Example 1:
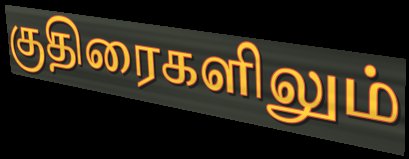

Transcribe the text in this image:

குதிரைகளிலும்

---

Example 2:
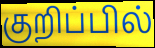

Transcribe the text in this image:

குறிப்பில்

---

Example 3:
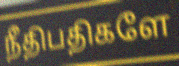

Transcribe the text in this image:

நீதிபதிகளே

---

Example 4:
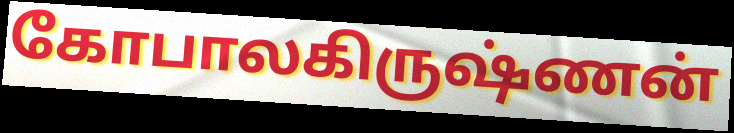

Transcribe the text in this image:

கோபாலகிருஷ்ணன்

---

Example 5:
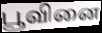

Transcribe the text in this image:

பூவினை